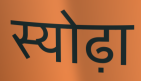
स्योढ़ा